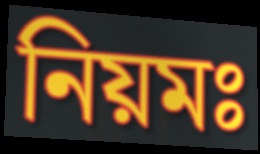
নিয়মঃ